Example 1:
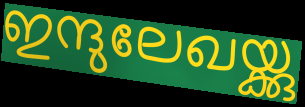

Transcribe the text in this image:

ഇന്ദുലേഖയ്ക്കു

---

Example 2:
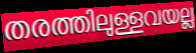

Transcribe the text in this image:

തരത്തിലുള്ളവയല്ല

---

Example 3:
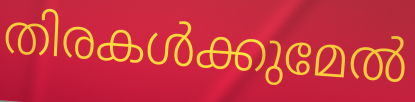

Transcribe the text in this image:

തിരകൾക്കുമേൽ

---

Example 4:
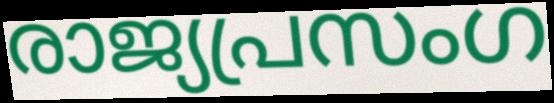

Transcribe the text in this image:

രാജ്യപ്രസംഗ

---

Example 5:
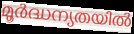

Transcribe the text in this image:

മൂർദ്ധന്യതയിൽ